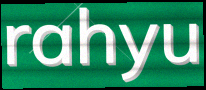
rahyu